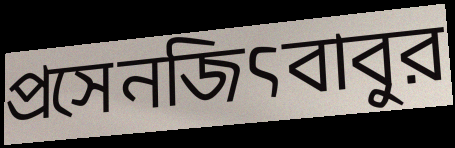
প্রসেনজিৎবাবুর